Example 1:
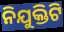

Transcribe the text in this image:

ନିଯୁକ୍ତିଟି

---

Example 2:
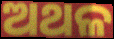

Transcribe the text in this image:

ଅଥଳ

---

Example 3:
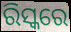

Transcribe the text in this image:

ରିସ୍କରେ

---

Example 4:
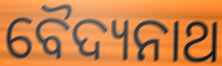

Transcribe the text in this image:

ବୈଦ୍ୟନାଥ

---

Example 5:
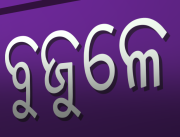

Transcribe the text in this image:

ବୁଜୁଳେ